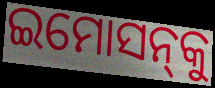
ଇମୋସନ୍‌କୁ